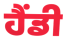
ਹੈਂਡੀ